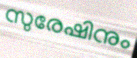
സുരേഷിനും